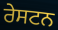
ਰੇਸਟਨ